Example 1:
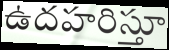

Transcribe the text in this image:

ఉదహరిస్తూ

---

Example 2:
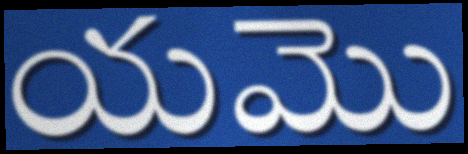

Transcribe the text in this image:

యమొ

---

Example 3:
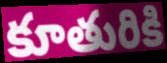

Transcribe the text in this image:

కూతురికి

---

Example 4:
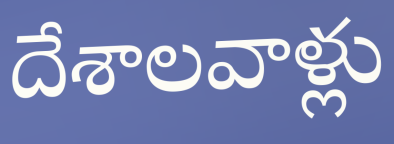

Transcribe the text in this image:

దేశాలవాళ్లు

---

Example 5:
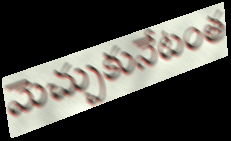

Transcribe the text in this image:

మెచ్చుకునేటంత